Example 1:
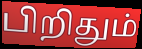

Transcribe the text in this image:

பிறிதும்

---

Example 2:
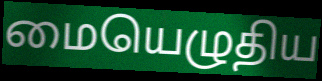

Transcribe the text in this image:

மையெழுதிய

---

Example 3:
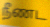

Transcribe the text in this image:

நீணட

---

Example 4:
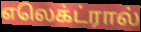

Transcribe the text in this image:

எலெக்ட்ரால்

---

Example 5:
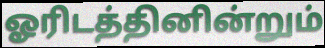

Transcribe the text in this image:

ஓரிடத்தினின்றும்